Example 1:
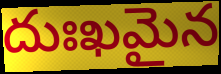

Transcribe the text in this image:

దుఃఖమైన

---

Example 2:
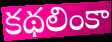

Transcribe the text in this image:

కథలింకా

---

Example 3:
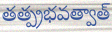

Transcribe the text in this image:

తత్ప్రభవత్వాత్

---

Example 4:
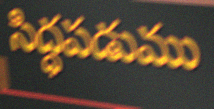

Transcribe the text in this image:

సిద్ధపడుము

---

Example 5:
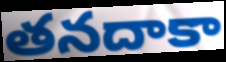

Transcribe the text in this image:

తనదాకా